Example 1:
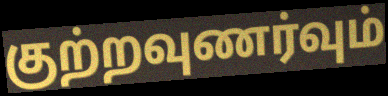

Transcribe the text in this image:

குற்றவுணர்வும்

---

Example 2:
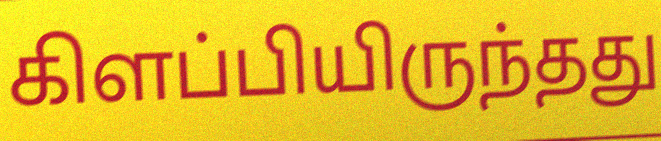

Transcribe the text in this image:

கிளப்பியிருந்தது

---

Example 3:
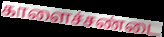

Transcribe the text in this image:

காளைச்சண்டை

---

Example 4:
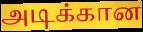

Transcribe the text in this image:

அடிக்கான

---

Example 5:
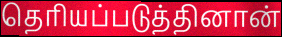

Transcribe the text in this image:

தெரியப்படுத்தினான்